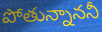
పోతున్నాననీ